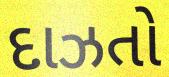
દાઝતો